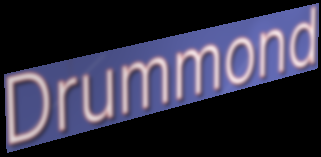
Drummond